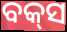
ବକ୍‌ସ